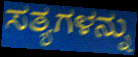
ಸತ್ಯಗಳನ್ನು